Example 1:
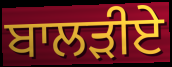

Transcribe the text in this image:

ਬਾਲੜੀਏ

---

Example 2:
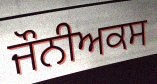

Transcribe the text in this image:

ਜੌਨੀਅਕਸ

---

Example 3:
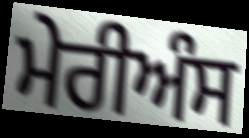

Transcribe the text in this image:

ਮੇਰੀਅੰਸ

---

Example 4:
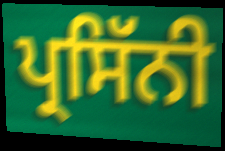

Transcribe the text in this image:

ਪ੍ਰਸਿੱਨੀ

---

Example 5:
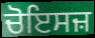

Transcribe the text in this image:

ਚੋਇਸਜ਼